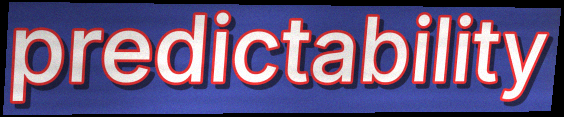
predictability